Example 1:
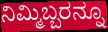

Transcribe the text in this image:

ನಿಮ್ಮಿಬ್ಬರನ್ನೂ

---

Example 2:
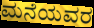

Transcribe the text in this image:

ಮನೆಯವರ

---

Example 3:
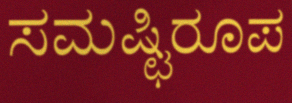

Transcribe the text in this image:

ಸಮಷ್ಟಿರೂಪ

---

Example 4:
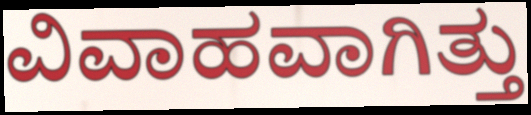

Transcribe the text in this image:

ವಿವಾಹವಾಗಿತ್ತು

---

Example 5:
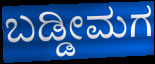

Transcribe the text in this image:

ಬಡ್ಡೀಮಗ